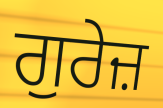
ਗੁਰੇਜ਼